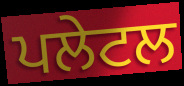
ਪਲੇਟਲ